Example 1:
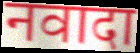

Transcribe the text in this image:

नवादा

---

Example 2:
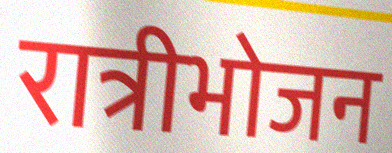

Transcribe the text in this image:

रात्रीभोजन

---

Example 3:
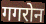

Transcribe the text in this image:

गगरोन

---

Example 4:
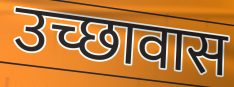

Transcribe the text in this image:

उच्छावास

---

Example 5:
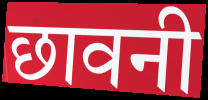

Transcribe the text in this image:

छावनी